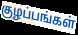
குழப்பங்கள்